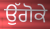
ਉੱਗੋਕੇ